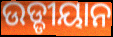
ଉଡ୍ଡୀୟାନ